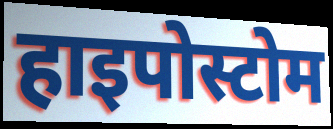
हाइपोस्टोम